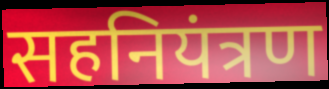
सहनियंत्रण